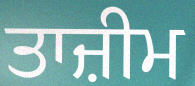
ਤਾਜ਼ੀਮ